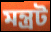
মন্ত্রট